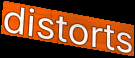
distorts